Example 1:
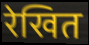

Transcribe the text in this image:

रेखित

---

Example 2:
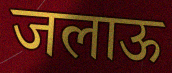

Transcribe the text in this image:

जलाऊ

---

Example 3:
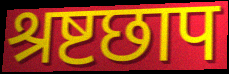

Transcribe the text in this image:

श्रष्टछाप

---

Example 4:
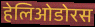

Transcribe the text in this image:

हेलिओडोरस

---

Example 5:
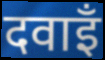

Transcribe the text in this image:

दवाइँ